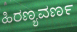
ಹಿರಣ್ಯವರ್ಣ